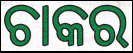
ଚାକର